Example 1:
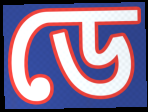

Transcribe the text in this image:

ডে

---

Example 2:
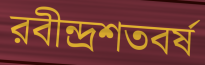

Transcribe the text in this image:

রবীন্দ্রশতবর্ষ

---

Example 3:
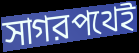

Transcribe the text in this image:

সাগরপথেই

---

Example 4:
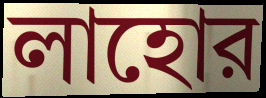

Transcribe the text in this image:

লাহোর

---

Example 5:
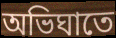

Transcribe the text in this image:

অভিঘাতে